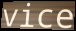
vice